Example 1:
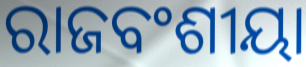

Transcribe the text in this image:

ରାଜବଂଶୀୟା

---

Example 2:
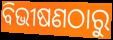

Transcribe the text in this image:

ବିଭୀଷଣଠାରୁ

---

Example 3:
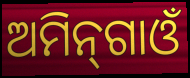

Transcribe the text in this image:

ଅମିନ୍‌ଗାଓଁ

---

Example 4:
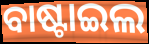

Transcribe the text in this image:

ବାଷ୍ଟାଇଲ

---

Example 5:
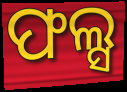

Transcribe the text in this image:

ଫଲ୍ସ